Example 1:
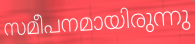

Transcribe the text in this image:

സമീപനമായിരുന്നു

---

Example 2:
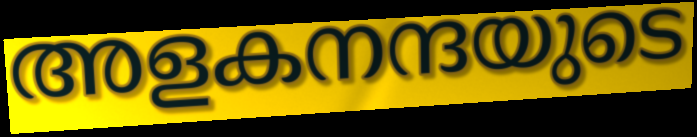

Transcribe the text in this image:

അളകനന്ദയുടെ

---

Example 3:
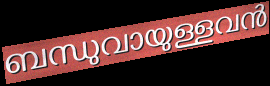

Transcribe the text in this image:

ബന്ധുവായുള്ളവൻ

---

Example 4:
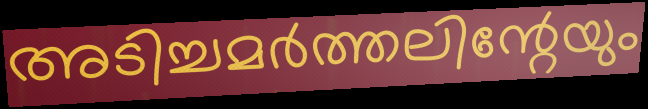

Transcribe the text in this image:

അടിച്ചമർത്തലിന്റേയും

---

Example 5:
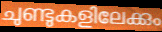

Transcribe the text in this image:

ചുണ്ടുകളിലേക്കും